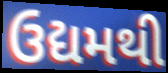
ઉદ્યમથી